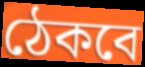
ঠেকবে